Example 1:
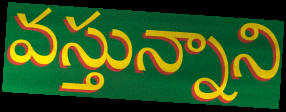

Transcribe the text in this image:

వస్తున్నాని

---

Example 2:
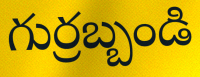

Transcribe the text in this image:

గుర్రబ్బండి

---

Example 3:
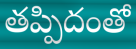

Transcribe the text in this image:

తప్పిదంతో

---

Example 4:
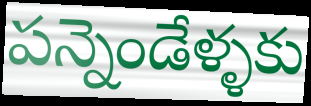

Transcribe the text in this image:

పన్నెండేళ్ళకు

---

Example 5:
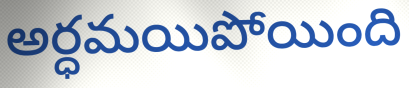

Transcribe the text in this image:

అర్ధమయిపోయింది